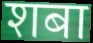
शबा